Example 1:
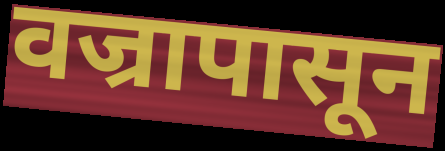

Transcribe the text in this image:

वज्रापासून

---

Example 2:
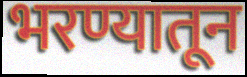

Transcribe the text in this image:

भरण्यातून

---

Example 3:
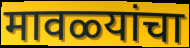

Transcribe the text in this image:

मावळ्यांचा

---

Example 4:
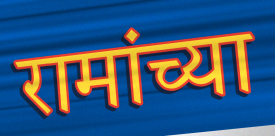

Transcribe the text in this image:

रामांच्या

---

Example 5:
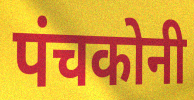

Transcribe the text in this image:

पंचकोनी